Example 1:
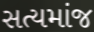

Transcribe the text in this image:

સત્યમાંજ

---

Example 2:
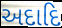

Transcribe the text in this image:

અદાદિ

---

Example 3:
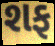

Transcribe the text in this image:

શફ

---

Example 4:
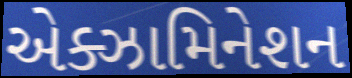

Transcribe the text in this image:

એક્ઝામિનેશન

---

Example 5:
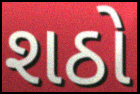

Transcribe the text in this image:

શઠો